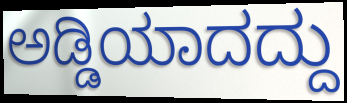
ಅಡ್ಡಿಯಾದದ್ದು